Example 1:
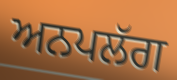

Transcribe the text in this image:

ਅਨਪਲੱਗ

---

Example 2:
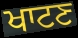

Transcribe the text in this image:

ਖਾਟਣ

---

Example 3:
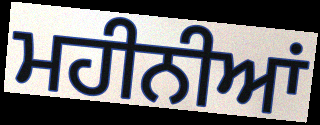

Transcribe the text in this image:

ਮਹੀਨੀਆਂ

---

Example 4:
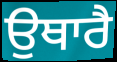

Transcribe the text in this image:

ਉਥਾਰੈ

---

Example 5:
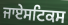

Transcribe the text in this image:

ਜਾਏਸਟਿਕਸ